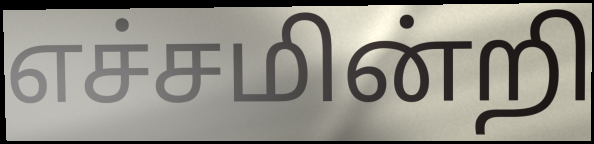
எச்சமின்றி